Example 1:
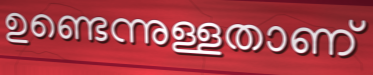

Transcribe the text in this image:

ഉണ്ടെന്നുള്ളതാണ്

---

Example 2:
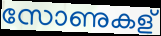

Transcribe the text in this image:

സോണുകള്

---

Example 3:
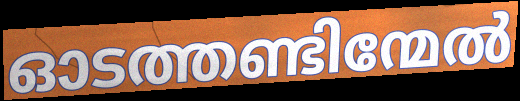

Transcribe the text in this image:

ഓടത്തണ്ടിന്മേൽ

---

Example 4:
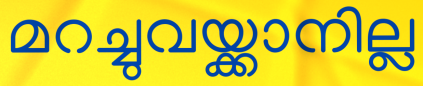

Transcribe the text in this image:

മറച്ചുവയ്ക്കാനില്ല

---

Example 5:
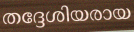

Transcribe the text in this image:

തദ്ദേശിയരായ